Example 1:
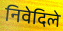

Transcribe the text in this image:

निवेदिले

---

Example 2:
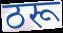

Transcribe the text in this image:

ठरू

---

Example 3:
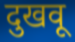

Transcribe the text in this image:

दुखवू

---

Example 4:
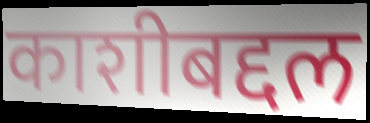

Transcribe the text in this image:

काशीबद्दल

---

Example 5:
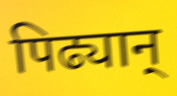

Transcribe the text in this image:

पिढ्यान्